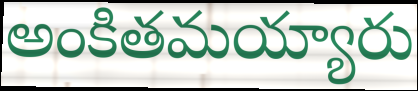
అంకితమయ్యారు